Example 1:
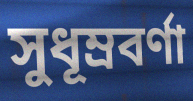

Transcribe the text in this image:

সুধূম্রবর্ণা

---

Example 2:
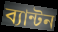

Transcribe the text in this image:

ব্যান্টন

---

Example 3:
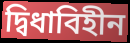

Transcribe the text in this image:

দ্বিধাবিহীন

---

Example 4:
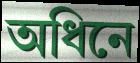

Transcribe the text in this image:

অধিনে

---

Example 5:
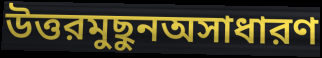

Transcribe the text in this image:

উত্তরমুছুনঅসাধারণ